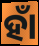
ହାଁ